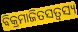
ବିକ୍ରମାଜିତସତ୍ଵସ୍ୟ